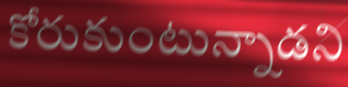
కోరుకుంటున్నాడని